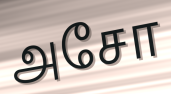
அசோ